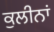
ਕੁਲੀਨਾਂ